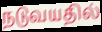
நடுவயதில்